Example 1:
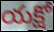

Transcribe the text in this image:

యక్షో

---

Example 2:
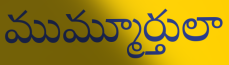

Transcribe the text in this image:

ముమ్మూర్తులా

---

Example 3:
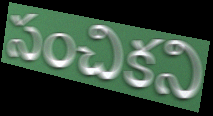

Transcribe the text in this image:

సంచికని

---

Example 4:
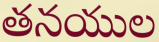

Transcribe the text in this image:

తనయుల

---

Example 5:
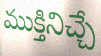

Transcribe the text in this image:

ముక్తినిచ్చే